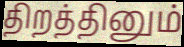
திறத்தினும்